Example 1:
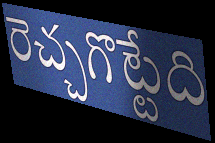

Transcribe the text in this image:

రెచ్చగొట్టేది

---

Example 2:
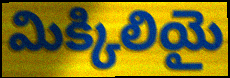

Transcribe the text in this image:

మిక్కిలియై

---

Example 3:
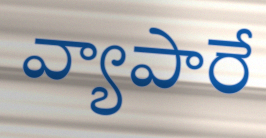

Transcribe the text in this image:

వ్యాపారే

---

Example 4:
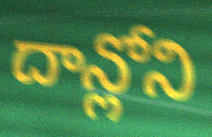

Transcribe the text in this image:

దాన్లోని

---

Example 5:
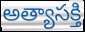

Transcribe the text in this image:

అత్యాసక్తి